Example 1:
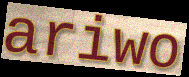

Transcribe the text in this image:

ariwo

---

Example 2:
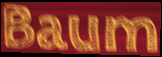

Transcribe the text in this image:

Baum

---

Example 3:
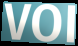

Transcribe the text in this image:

VOI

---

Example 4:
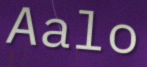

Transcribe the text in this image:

Aalo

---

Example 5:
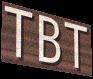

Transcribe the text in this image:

TBT